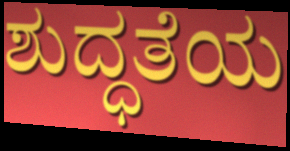
ಶುದ್ಧತೆಯ